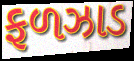
ફળઝાડ